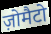
ज़ोमैटो